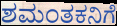
ಶಮಂತಕನಿಗೆ